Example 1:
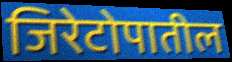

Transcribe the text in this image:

जिरेटोपातील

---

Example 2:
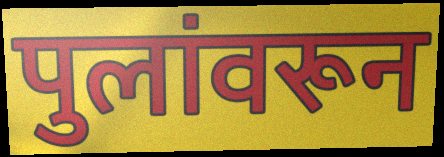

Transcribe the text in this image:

पुलांवरून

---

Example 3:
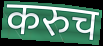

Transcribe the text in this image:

करुच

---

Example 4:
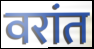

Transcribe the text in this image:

वरांत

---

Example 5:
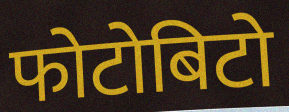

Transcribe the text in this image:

फोटोबिटो